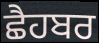
ਛੈਹਬਰ